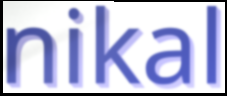
nikal